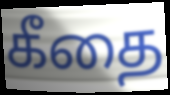
கீதை